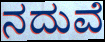
ನದುವೆ